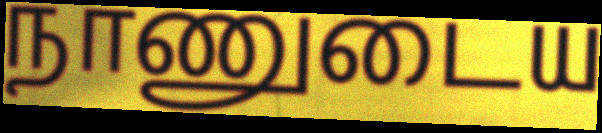
நாணுடைய